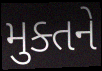
મુક્તને